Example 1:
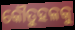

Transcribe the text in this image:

କୌତୁହଳକୁ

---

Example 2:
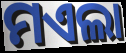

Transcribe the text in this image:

ମଏଲା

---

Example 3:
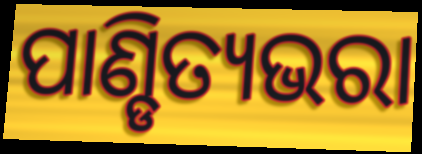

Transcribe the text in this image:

ପାଣ୍ଡିତ୍ୟଭରା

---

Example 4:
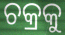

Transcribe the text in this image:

ଚକ୍ରକୁ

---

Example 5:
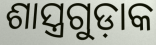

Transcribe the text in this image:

ଶାସ୍ତ୍ରଗୁଡ଼ାକ